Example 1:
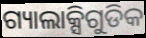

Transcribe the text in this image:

ଗ୍ୟାଲାକ୍ସିଗୁଡିକ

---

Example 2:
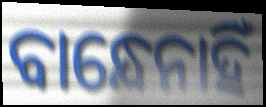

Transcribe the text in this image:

ବାନ୍ଧେନାହିଁ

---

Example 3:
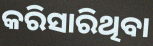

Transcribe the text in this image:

କରିସାରିଥିବା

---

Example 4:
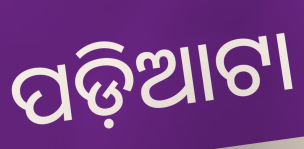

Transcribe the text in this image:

ପଡ଼ିଆଟା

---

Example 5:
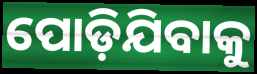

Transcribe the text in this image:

ପୋଡ଼ିଯିବାକୁ